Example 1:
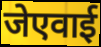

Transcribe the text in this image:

जेएवाई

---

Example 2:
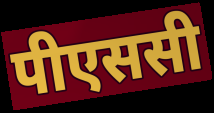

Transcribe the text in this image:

पीएससी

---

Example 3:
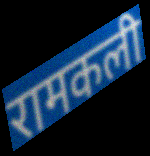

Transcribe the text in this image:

रामकली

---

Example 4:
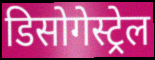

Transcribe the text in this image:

डिसोगेस्ट्रेल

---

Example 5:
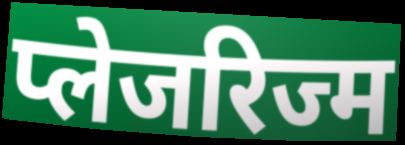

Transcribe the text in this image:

प्लेजरिज्म